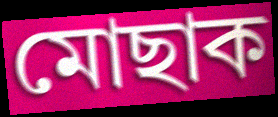
মোছাক